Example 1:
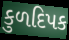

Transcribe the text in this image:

કુળદિપક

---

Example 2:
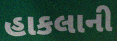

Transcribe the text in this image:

હાકલાની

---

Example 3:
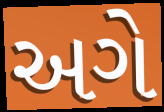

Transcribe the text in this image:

અગે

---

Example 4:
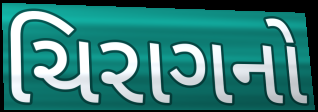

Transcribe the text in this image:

ચિરાગનો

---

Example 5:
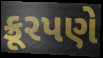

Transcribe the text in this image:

ક્રૂરપણે